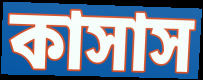
কাসাস